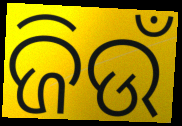
ଜିଉଁ